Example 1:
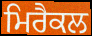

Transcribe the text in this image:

ਮਿਰੈਕਲ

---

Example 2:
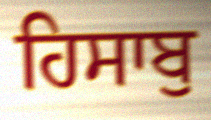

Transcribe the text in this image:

ਹਿਸਾਬੁ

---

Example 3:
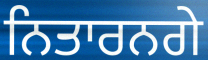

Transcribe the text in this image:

ਨਿਤਾਰਨਗੇ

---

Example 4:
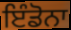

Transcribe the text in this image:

ਇੰਡੋਨਾ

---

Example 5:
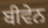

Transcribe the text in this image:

ਬੀਵੇਨ